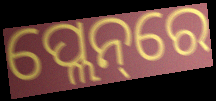
ପ୍ଲେନ୍‌ରେ